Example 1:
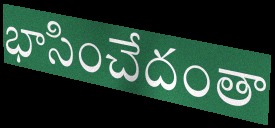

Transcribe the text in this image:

భాసించేదంతా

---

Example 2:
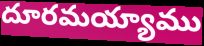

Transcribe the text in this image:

దూరమయ్యాము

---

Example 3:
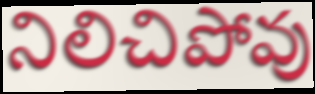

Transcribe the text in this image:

నిలిచిపోవు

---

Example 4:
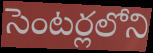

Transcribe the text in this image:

సెంటర్లలోని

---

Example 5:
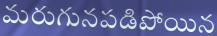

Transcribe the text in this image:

మరుగునపడిపోయిన